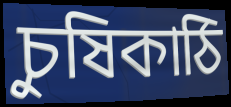
চুষিকাঠি